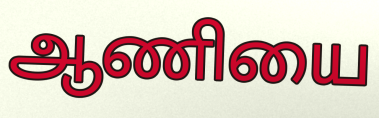
ஆணியை